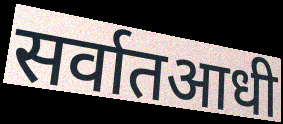
सर्वातआधी